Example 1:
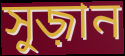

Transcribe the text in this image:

সুজ়ান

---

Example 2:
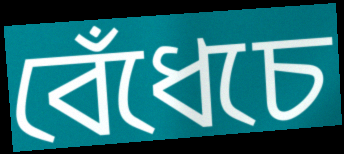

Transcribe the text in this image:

বেঁধেচে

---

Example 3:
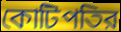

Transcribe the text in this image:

কোটিপতির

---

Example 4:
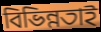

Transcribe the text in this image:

বিভিন্নতাই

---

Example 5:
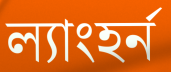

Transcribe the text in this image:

ল্যাংহর্ন